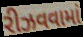
રીઝવવામાં